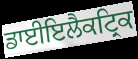
ਡਾਈਇਲੈਕਟ੍ਰਿਕ